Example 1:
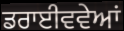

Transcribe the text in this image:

ਡਰਾਈਵਵੇਆਂ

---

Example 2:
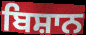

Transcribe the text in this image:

ਬਿਸ਼ਾਨ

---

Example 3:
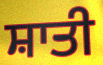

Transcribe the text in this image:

ਸ਼ਾਤੀ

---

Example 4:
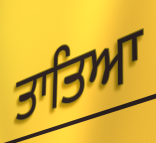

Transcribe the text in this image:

ਤਾਤਿਆ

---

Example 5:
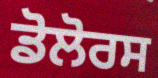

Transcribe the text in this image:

ਡੋਲੋਰਸ